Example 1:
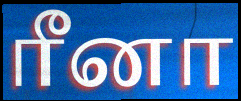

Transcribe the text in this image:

ரீனா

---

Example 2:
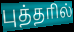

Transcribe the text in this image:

புத்தரில்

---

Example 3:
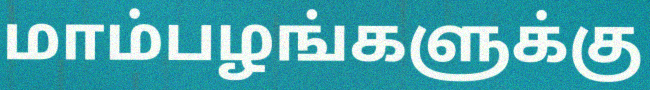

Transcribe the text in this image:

மாம்பழங்களுக்கு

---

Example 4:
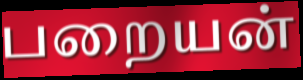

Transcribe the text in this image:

பறையன்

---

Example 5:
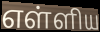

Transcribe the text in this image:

எள்ளிய